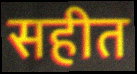
सहीत